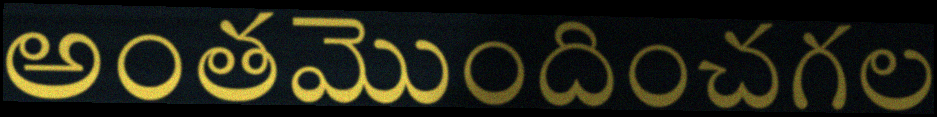
అంతమొందించగల